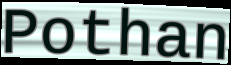
Pothan